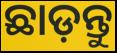
ଛାଡ଼ନ୍ତୁ